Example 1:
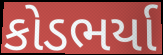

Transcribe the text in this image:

કોડભર્યા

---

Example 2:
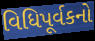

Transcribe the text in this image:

વિધિપૂર્વકનો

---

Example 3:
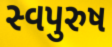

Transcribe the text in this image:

સ્વપુરુષ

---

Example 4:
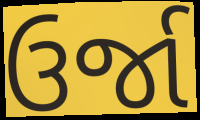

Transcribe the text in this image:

ઉર્જા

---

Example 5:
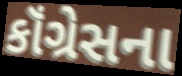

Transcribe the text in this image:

કૉંગ્રેસના